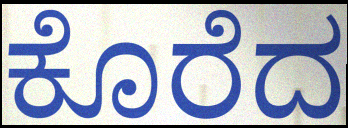
ಕೊರೆದ